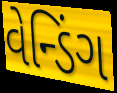
વેન્ડિંગ